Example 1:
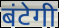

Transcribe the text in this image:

बंटेगी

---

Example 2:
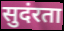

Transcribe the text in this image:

सुदंरता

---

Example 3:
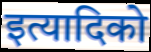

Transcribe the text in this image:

इत्यादिको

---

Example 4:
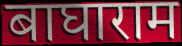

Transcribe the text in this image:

बाघाराम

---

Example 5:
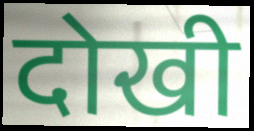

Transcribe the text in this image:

दोखी